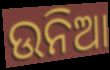
ଉନିଆ